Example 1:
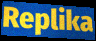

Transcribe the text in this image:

Replika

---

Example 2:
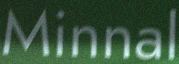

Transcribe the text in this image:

Minnal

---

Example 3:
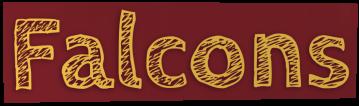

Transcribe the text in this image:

Falcons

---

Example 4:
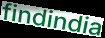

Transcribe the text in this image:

findindia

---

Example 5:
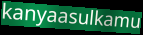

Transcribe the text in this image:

kanyaasulkamu